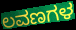
ಲವಣಗಳ